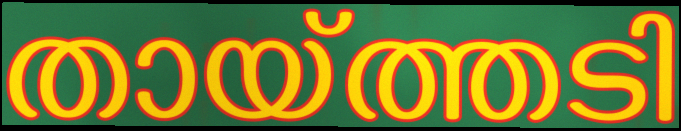
തായ്ത്തടി